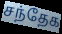
சந்தேக